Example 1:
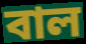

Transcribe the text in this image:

বাল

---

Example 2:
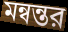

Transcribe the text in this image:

মন্বন্তর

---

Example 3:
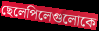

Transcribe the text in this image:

ছেলেপিলেগুলোকে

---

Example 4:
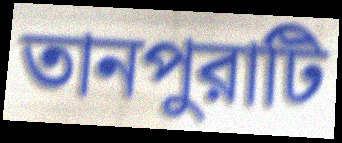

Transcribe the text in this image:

তানপুরাটি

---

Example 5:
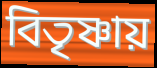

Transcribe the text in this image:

বিতৃষ্ণায়